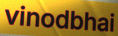
vinodbhai